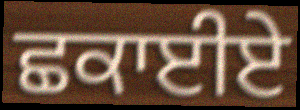
ਛਕਾਈਏ